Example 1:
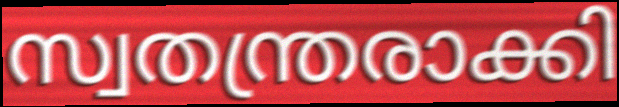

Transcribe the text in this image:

സ്വതന്ത്രരാക്കി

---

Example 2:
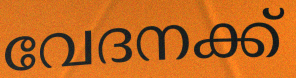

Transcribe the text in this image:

വേദനക്ക്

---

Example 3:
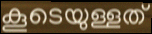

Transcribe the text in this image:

കൂടെയുള്ളത്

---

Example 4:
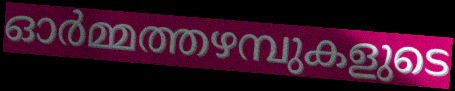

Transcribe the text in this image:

ഓർമ്മത്തഴമ്പുകളുടെ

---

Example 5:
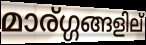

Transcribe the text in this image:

മാര്ഗ്ഗങ്ങളില്